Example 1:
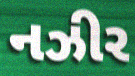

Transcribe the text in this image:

નઝીર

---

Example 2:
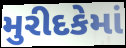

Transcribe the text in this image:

મુરીદકેમાં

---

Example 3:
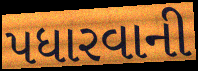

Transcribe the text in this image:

પધારવાની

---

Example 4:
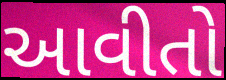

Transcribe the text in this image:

આવીતો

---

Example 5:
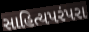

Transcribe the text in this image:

સાહિત્યપરંપરા